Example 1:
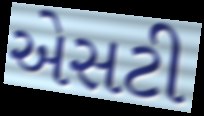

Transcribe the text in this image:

એસટી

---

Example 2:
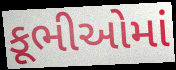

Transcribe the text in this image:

કૂભીઓમાં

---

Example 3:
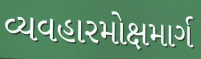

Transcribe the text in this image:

વ્યવહારમોક્ષમાર્ગ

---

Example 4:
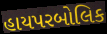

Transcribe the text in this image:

હાયપરબોલિક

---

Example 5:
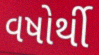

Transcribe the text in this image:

વષોર્થી